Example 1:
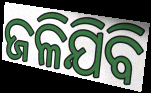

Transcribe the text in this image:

ଜଳିଯିବି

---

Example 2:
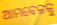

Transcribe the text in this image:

ଆମବେଳକୁ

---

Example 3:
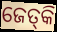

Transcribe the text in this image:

ଜେତ୍‌କି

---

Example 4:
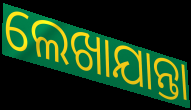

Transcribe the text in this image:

ଲେଖାଯାନ୍ତା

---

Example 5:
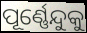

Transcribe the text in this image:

ପୂର୍ଣ୍ଣେନ୍ଦୁକୁ